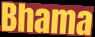
Bhama